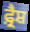
ਫ਼੍ਰੈਸ਼